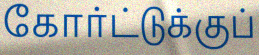
கோர்ட்டுக்குப்